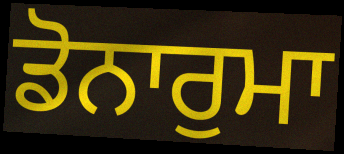
ਡੋਨਾਰੁਮਾ